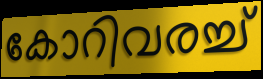
കോറിവരച്ച്